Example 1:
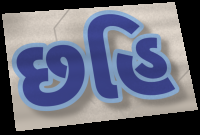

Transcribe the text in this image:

છહિ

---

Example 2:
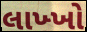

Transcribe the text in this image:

લાખ્ખો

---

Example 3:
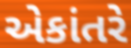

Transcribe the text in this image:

એકાંતરે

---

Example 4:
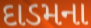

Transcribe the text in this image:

દાડમના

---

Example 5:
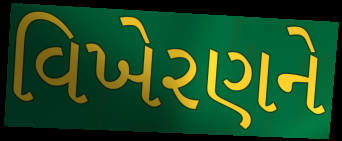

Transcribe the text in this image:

વિખેરણને